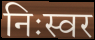
निःस्वर